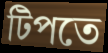
টিপতে